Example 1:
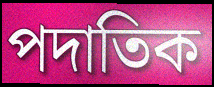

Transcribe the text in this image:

পদাতিক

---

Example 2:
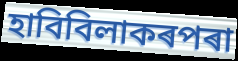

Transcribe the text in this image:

হাবিবিলাকৰপৰা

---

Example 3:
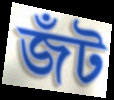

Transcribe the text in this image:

জঁট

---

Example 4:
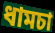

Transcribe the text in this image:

ধামচা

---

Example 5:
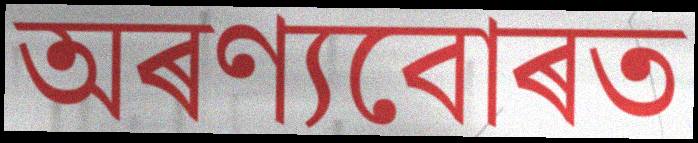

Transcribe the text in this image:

অৰণ্যবোৰত